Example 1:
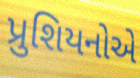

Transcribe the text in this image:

પ્રુશિયનોએ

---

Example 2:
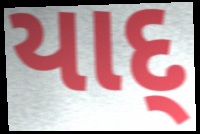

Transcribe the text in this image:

યાદ્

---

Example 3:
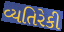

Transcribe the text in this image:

વ્યતિરેકી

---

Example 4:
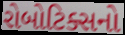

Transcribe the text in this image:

રોબોટિક્સનો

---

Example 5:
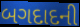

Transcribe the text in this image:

બગદાદની